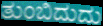
ತುಂಬಿದುದು